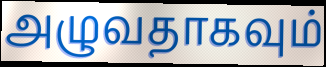
அழுவதாகவும்